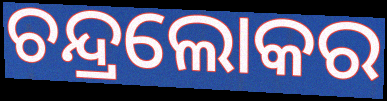
ଚନ୍ଦ୍ରଲୋକର